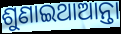
ଶୁଣାଇଥାଆନ୍ତା